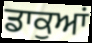
ਡਾਕੁਆਂ